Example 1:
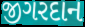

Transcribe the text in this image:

જીગરદાન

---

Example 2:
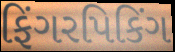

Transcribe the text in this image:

ફિંગરપિકિંગ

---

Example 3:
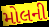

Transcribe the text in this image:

મોલની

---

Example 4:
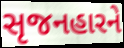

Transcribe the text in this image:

સૃજનહારને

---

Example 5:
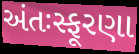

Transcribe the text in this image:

અંતઃસ્ફૂરણા